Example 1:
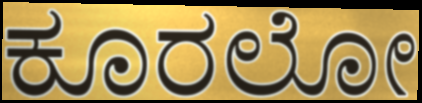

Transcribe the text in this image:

ಕೂರಲೋ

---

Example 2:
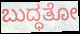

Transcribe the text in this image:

ಬುದ್ಧತೋ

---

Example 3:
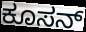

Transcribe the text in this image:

ಕೂಸನ್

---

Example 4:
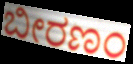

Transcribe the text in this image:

ಬೀರಣಂ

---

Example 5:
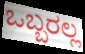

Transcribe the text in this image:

ಒಬ್ಬರಲ್ಲ